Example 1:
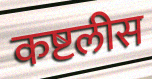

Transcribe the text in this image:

कष्टलीस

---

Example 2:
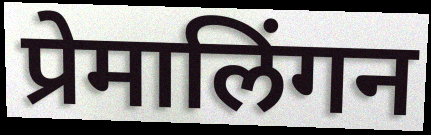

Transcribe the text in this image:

प्रेमालिंगन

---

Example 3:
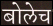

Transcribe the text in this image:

बोलेच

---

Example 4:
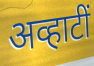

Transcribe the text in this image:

अव्हाटीं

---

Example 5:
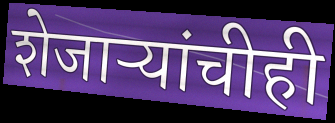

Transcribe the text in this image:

शेजाऱ्यांचीही